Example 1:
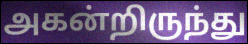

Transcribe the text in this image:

அகன்றிருந்து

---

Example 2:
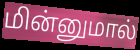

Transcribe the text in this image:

மின்னுமால்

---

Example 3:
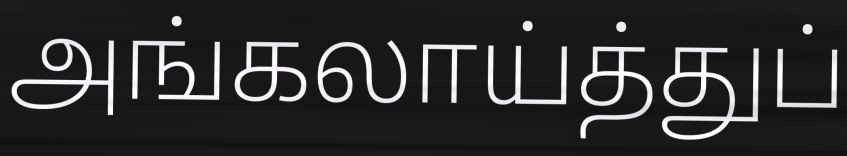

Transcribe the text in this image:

அங்கலாய்த்துப்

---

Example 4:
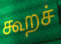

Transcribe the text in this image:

கூறச்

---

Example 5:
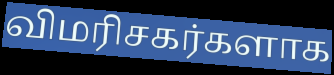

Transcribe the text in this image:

விமரிசகர்களாக